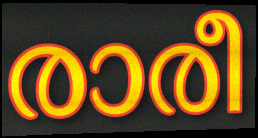
രാരീ